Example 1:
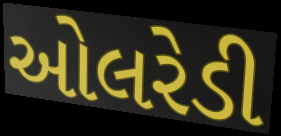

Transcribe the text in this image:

ઓલરેડી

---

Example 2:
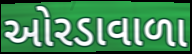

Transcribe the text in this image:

ઓરડાવાળા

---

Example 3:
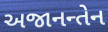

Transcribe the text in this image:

અજાનન્તેન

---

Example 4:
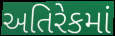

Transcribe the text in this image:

અતિરેકમાં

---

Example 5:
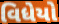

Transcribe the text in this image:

વિધેયો